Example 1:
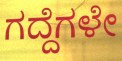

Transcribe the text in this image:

ಗದ್ದೆಗಳೇ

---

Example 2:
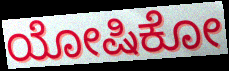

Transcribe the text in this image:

ಯೋಷಿಕೋ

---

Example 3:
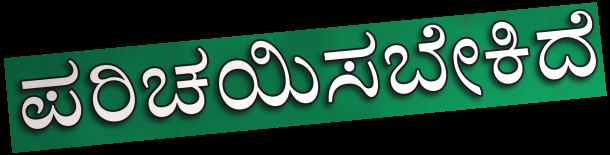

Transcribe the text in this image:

ಪರಿಚಯಿಸಬೇಕಿದೆ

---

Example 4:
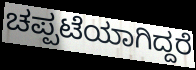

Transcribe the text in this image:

ಚಪ್ಪಟೆಯಾಗಿದ್ದರೆ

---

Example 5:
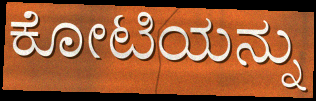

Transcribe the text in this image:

ಕೋಟಿಯನ್ನು